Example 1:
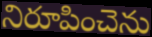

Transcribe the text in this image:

నిరూపించెను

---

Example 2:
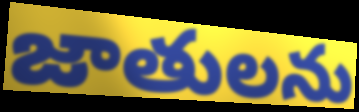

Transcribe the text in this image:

జాతులను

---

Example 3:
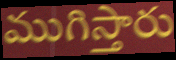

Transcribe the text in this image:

ముగిస్తారు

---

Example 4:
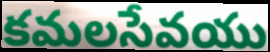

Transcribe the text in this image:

కమలసేవయు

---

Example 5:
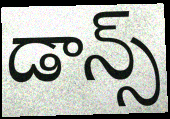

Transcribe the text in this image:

డాన్స్